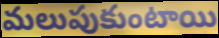
మలుపుకుంటాయి